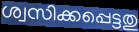
ശ്വസിക്കപ്പെട്ടതു